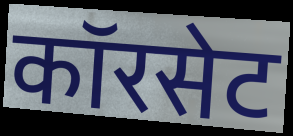
कॉरसेट